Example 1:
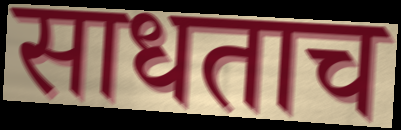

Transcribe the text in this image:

साधताच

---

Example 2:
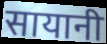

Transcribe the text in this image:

सायानी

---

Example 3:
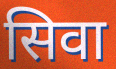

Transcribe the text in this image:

सिवा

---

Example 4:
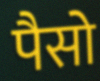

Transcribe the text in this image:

पैसो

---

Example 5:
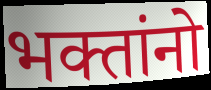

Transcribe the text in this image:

भक्तांनो